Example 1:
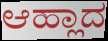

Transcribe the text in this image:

ಆಹ್ಲಾದ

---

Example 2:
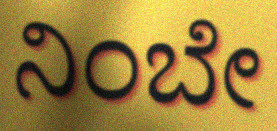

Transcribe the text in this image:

ನಿಂಬೇ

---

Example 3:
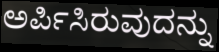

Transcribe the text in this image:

ಅರ್ಪಿಸಿರುವುದನ್ನು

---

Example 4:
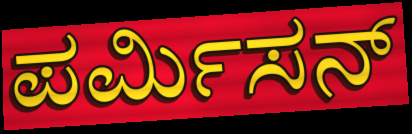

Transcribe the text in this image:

ಪರ್ಮಿಸನ್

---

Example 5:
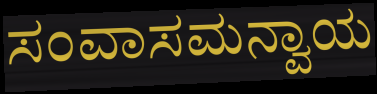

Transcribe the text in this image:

ಸಂವಾಸಮನ್ವಾಯ